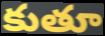
కుతూ